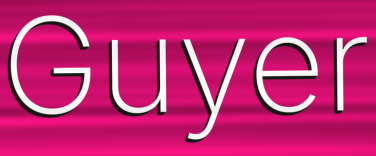
Guyer